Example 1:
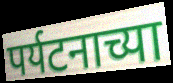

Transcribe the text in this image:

पर्यटनाच्या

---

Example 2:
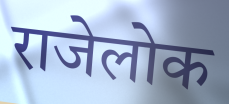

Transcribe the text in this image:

राजेलोक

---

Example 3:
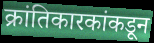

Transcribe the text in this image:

क्रांतिकारकांकडून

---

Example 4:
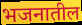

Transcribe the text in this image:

भजनातील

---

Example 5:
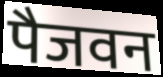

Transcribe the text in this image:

पैजवन